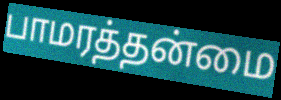
பாமரத்தன்மை